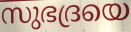
സുഭദ്രയെ